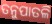
ତନୁପାତଳି